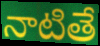
నాటితే